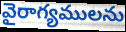
వైరాగ్యములను